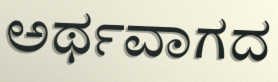
ಅರ್ಥವಾಗದ